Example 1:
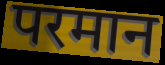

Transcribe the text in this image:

परमान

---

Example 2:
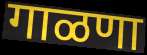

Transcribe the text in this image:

गाळणा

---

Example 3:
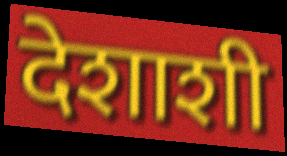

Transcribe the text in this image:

देशाशी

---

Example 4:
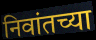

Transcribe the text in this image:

निवांतच्या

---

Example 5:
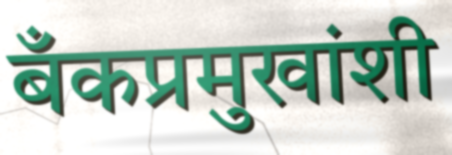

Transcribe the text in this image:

बँकप्रमुखांशी